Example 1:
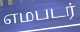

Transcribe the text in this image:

எமபடர்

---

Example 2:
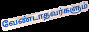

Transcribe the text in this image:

வேண்டாதவர்களும்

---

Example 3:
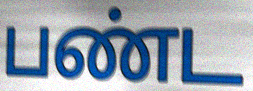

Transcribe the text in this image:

பண்ட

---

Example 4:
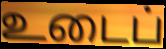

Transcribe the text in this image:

உடைப்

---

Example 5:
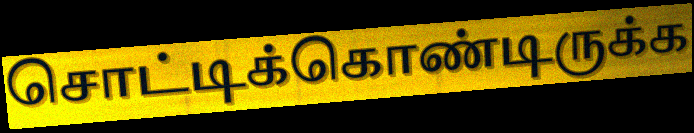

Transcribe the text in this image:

சொட்டிக்கொண்டிருக்க